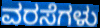
ವರಸೆಗಳು